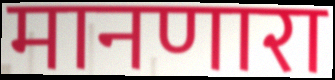
मानणारा